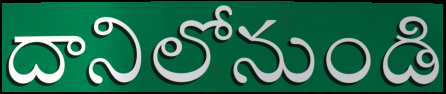
దానిలోనుండి